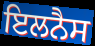
ਇਲਨੈਸ